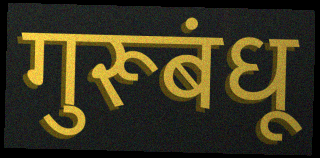
गुरूबंधू